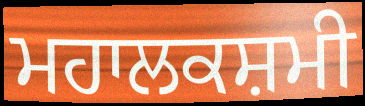
ਮਹਾਲਕਸ਼ਮੀ